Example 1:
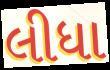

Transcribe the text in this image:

લીધા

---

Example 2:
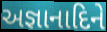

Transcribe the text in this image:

અજ્ઞાનાદિને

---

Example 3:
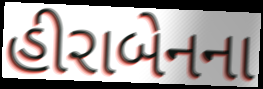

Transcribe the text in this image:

હીરાબેનના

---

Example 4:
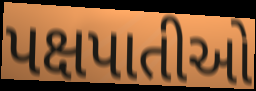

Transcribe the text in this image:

પક્ષપાતીઓ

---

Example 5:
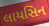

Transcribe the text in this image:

લાયસિન